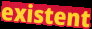
existent